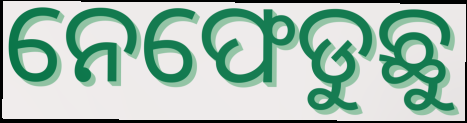
ନେଫେଡୁଛୁ